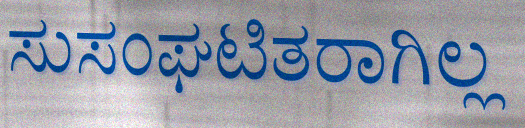
ಸುಸಂಘಟಿತರಾಗಿಲ್ಲ